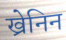
ख्रेनिन